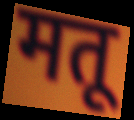
मतू